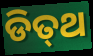
ଡିତ୍‍ଥ